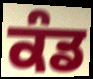
ਕੰਡ